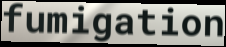
fumigation